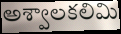
అశ్వాలకలిమి